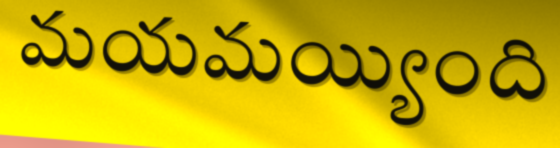
మయమయ్యింది